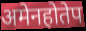
अमेनहोतेप